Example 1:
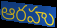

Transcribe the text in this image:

ఆరహు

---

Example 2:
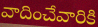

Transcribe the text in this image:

వాదించేవారికి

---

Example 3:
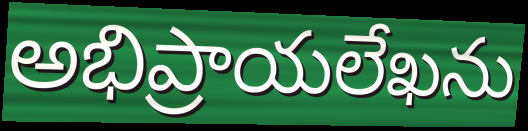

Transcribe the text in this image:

అభిప్రాయలేఖను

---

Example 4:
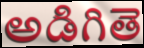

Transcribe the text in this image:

అడిగితె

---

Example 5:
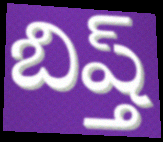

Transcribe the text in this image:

బిష్త్